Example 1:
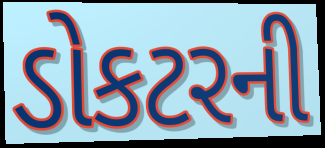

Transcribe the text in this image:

ડોકટરની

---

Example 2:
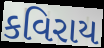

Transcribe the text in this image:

કવિરાય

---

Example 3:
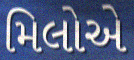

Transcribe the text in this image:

મિલોએ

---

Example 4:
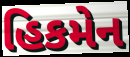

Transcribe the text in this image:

હિકમેન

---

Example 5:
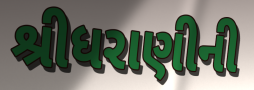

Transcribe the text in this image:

શ્રીધરાણીની